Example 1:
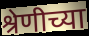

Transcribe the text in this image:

श्रेणीच्या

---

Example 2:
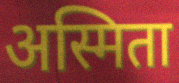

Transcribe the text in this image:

अस्मिता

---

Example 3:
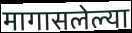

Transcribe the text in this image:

मागासलेल्या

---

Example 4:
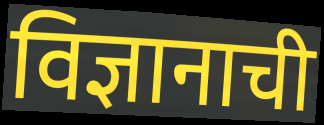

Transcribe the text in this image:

विज्ञानाची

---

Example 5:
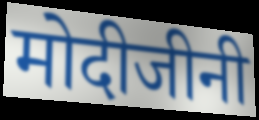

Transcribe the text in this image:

मोदीजीनी